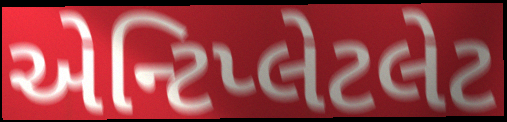
એન્ટિપ્લેટલેટ